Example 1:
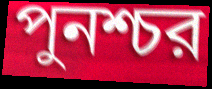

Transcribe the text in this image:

পুনশ্চর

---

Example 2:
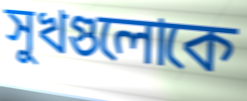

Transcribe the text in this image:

সুখগুলোকে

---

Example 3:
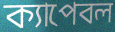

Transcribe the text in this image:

ক্যাপেবল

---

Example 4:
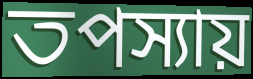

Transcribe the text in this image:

তপস্যায়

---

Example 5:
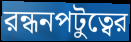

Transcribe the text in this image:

রন্ধনপটুত্বের